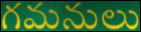
గమనులు